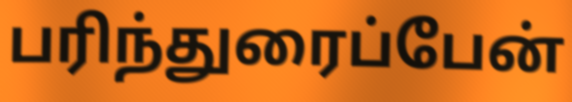
பரிந்துரைப்பேன்